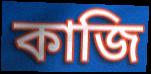
কাজি